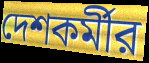
দেশকর্মীর